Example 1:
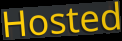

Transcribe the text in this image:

Hosted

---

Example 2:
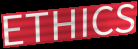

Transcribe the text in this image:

ETHICS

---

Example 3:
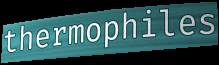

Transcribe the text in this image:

thermophiles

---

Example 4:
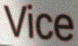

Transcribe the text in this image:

Vice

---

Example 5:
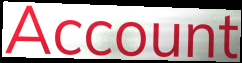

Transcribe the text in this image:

Account